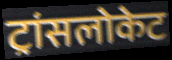
ट्रांसलोकेट